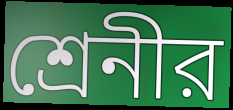
শ্রেনীর